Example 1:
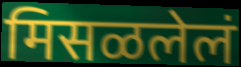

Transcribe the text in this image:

मिसळलेलं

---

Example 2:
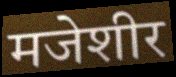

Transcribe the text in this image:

मजेशीर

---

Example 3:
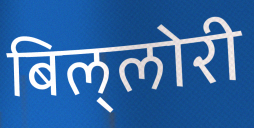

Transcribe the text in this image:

बिल्लोरी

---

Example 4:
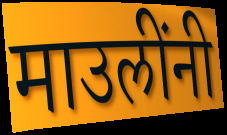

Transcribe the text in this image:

माउलींनी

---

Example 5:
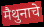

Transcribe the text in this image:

मैथुनाचे